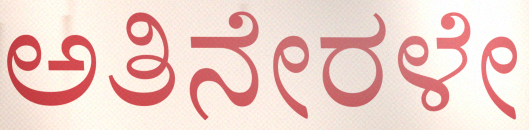
ಅತಿನೇರಳೇ